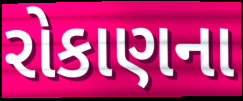
રોકાણના